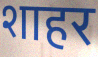
शाहर